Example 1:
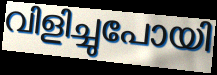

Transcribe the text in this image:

വിളിച്ചുപോയി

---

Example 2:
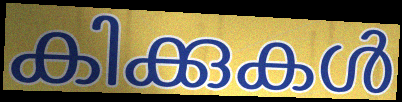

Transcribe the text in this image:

കിക്കുകൾ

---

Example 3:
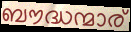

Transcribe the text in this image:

ബൗദ്ധന്മാര്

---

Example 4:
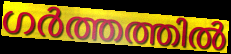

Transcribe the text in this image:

ഗർത്തത്തിൽ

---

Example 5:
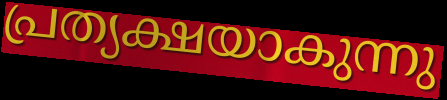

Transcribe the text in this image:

പ്രത്യക്ഷയാകുന്നു